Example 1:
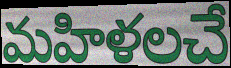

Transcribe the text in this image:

మహిళలచే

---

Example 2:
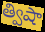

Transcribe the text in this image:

త్విషా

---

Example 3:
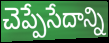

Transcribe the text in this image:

చెప్పేసేదాన్ని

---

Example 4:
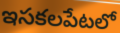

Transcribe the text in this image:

ఇసకలపేటలో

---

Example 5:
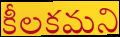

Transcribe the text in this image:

కీలకమని